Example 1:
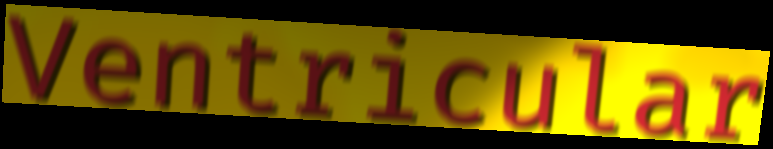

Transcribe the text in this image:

Ventricular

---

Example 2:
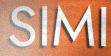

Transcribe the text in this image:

SIMI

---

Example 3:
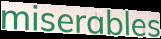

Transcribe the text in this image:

miserables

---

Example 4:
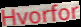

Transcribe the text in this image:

Hvorfor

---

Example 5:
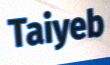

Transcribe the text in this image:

Taiyeb